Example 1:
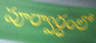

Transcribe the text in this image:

పూర్వార్ధంలో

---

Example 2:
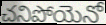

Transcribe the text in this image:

చనిపోయెనో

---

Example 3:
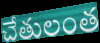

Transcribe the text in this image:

చేతులంత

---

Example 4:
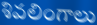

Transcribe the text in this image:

శివలింగాలు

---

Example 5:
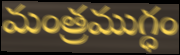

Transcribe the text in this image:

మంత్రముగ్ధం